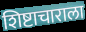
शिष्टाचाराला